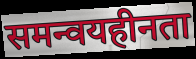
समन्वयहीनता